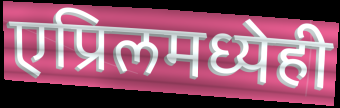
एप्रिलमध्येही